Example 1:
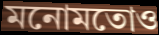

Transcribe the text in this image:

মনোমতোও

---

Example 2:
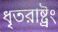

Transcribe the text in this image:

ধৃতরাষ্ট্রং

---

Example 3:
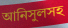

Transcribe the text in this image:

আনিসুলসহ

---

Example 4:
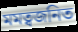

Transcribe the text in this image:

মমত্বজনিত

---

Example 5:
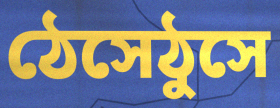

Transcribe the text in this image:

ঠেসেঠুসে